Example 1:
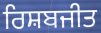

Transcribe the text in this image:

ਰਿਸ਼ਬਜੀਤ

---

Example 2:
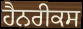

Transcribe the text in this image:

ਹੈਨਰੀਕਸ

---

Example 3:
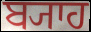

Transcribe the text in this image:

ਬ੍ਯਾਹ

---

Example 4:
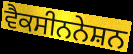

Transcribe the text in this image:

ਵੈਕਸੀਨਨੇਸ਼ਨ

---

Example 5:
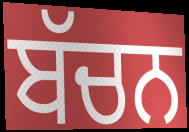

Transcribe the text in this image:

ਬੱਚਨ